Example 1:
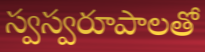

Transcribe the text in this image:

స్వస్వరూపాలతో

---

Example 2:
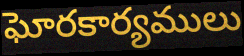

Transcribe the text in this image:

ఘోరకార్యములు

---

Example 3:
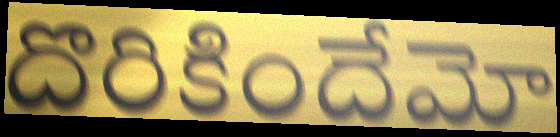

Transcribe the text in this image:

దొరికిందేమో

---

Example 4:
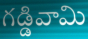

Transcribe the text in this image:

గడ్డివామి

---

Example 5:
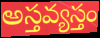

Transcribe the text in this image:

అస్తవ్యస్తం